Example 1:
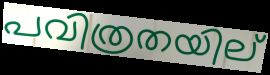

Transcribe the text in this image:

പവിത്രതയില്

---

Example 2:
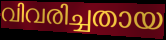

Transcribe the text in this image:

വിവരിച്ചതായ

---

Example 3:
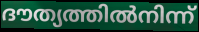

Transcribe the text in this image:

ദൗത്യത്തിൽനിന്ന്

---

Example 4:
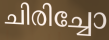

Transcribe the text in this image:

ചിരിച്ചോ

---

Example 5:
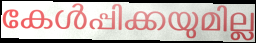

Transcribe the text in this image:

കേൾപ്പിക്കയുമില്ല